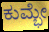
ಕುಮ್ಭೇ